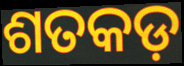
ଶତକଡ଼